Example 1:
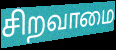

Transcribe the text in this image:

சிறவாமை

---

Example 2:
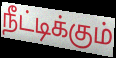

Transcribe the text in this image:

நீட்டிக்கும்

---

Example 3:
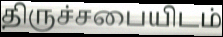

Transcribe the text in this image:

திருச்சபையிடம்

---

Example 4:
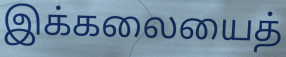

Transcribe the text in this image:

இக்கலையைத்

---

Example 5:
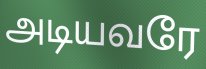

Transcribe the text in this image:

அடியவரே